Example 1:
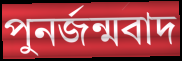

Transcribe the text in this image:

পুনর্জন্মবাদ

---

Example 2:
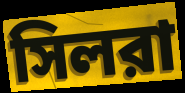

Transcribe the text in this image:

সিলরা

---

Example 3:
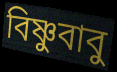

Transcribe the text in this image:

বিষ্ণুবাবু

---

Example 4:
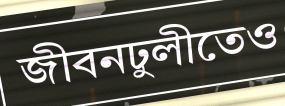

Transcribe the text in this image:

জীবনঢুলীতেও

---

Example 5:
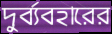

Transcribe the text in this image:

দুর্ব্যবহারের